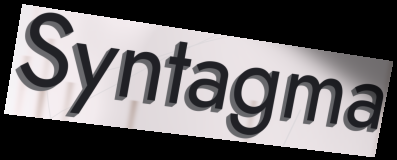
Syntagma